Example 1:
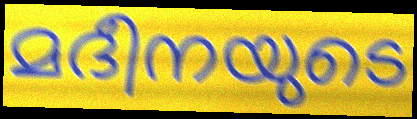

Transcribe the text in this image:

മദീനയുടെ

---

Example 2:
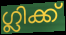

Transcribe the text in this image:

ഗ്ലിക്ക്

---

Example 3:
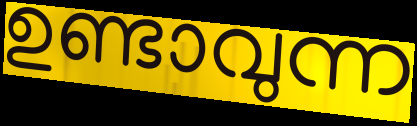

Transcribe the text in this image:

ഉണ്ടാവുന്ന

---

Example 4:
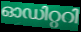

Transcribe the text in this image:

ഓഡിറ്ററി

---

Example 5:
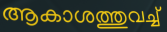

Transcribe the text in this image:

ആകാശത്തുവച്ച്